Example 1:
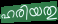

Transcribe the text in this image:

ഹരിയതു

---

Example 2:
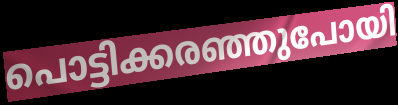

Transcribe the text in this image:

പൊട്ടിക്കരഞ്ഞുപോയി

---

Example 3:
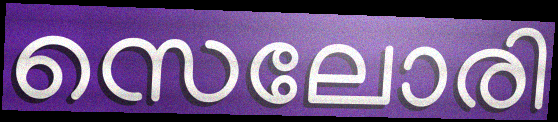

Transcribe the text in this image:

സെലോരി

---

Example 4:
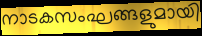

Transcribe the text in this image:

നാടകസംഘങ്ങളുമായി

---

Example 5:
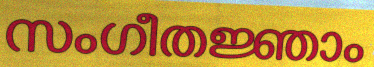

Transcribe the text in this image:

സംഗീതജ്ഞാം